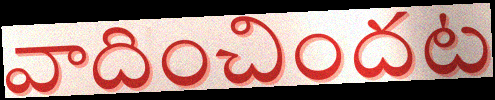
వాదించిందట